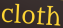
cloth